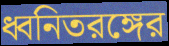
ধ্বনিতরঙ্গের